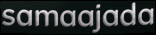
samaajada